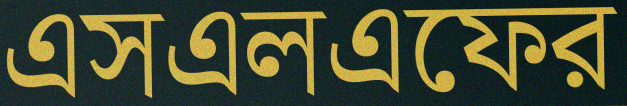
এসএলএফের